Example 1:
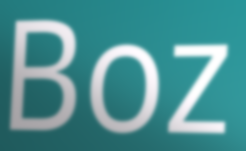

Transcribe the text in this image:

Boz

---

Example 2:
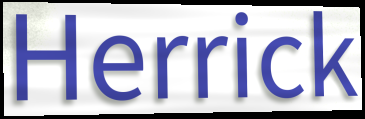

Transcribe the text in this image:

Herrick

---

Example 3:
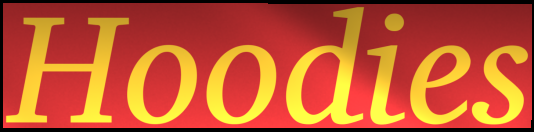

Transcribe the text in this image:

Hoodies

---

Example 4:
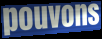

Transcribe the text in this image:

pouvons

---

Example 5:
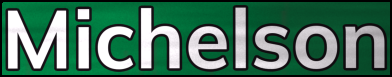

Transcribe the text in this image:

Michelson